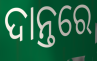
ଦାନ୍ତରେ